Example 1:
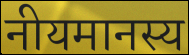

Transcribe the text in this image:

नीयमानस्य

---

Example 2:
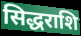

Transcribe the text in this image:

सिद्धराशि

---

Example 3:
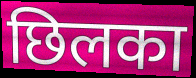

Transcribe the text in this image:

छिलका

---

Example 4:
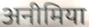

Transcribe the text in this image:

अनीमिया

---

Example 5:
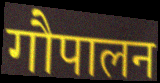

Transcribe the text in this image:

गौपालन